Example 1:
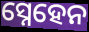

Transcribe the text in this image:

ସ୍ନେହେନ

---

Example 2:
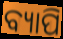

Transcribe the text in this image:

ବ୍ୟାପି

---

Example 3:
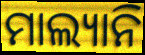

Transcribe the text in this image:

ମାଲ୍ୟାନି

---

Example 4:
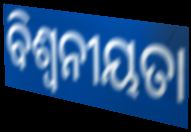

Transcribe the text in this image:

ବିଶ୍ୱନୀୟତା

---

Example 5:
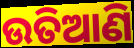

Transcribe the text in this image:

ଉତିଆଣି